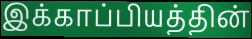
இக்காப்பியத்தின்